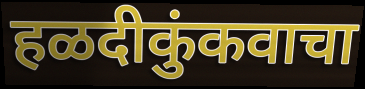
हळदीकुंकवाचा